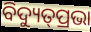
ବିଦ୍ୟୁତ୍‌ପ୍ରଭା